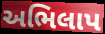
અભિલાપ